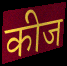
कीज